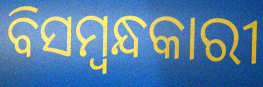
ବିସମ୍ବନ୍ଧକାରୀ